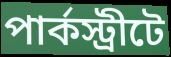
পার্কস্ট্রীটে